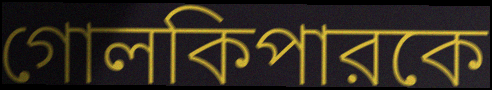
গোলকিপারকে